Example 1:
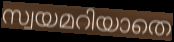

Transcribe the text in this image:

സ്വയമറിയാതെ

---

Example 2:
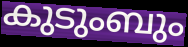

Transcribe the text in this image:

കുടുംബും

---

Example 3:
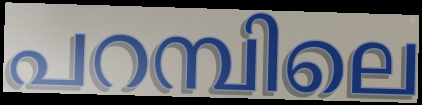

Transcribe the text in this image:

പറമ്പിലെ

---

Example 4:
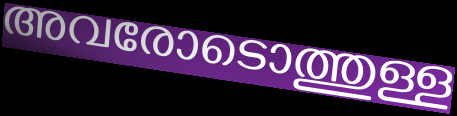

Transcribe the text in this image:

അവരോടൊത്തുള്ള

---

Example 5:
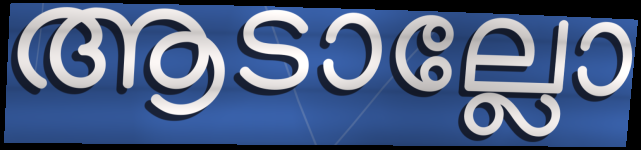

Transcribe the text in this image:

ആടാല്ലോ